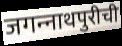
जगन्नाथपुरीची